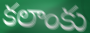
కలాంకు